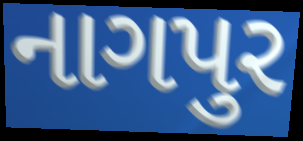
નાગપુર